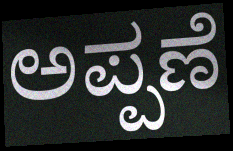
ಅಪ್ಪಣೆ